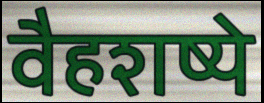
वैहशष्ये